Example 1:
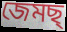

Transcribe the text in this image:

জেমছ্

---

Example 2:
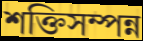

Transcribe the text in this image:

শক্তিসম্পন্ন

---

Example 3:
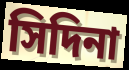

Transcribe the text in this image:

সিদিনা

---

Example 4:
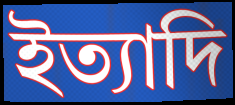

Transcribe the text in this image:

ইত্য়াদি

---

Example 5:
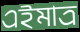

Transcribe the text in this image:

এইমাত্ৰ